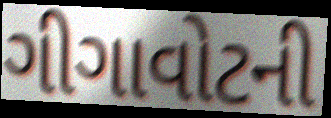
ગીગાવોટની